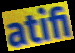
atifi